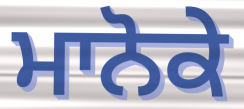
ਮਾਨੋਕੇ